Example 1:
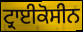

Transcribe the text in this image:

ਟ੍ਰਾਈਕੋਸੀਨ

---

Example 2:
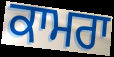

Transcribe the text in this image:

ਕਾਮਰਾ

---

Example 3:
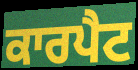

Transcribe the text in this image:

ਕਾਰਪੈਟ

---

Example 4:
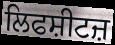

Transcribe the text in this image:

ਲਿਫਸ਼ੀਟਜ਼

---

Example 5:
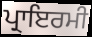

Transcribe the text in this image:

ਪ੍ਰਾਇਰਮੀ